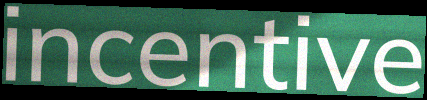
incentive